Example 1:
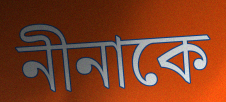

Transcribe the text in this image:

নীনাকে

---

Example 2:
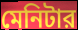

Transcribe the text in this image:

মেনিটার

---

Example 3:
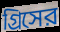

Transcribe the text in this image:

গ্রিসের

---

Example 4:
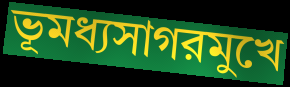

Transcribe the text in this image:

ভূমধ্যসাগরমুখে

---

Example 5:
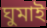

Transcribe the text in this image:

ঘুমাই